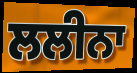
ਲਲੀਨਾ